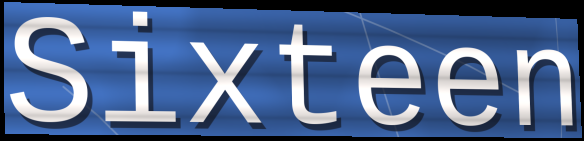
Sixteen